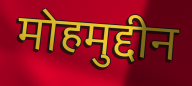
मोहमुद्दीन